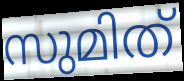
സുമിത്